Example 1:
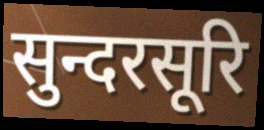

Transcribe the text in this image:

सुन्दरसूरि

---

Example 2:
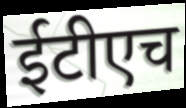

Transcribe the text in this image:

ईटीएच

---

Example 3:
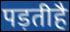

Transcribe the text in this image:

पड़तीहै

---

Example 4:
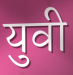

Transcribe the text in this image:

युवी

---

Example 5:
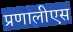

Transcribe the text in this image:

प्रणालीएस